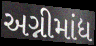
અગ્નીમાંદ્ય